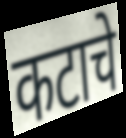
कटाचे